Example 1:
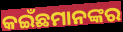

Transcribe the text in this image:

କଇଁଛମାନଙ୍କର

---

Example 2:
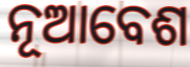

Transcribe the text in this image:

ନୂଆବେଶ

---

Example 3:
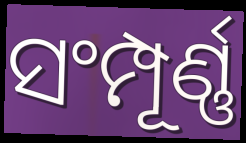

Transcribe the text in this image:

ସଂମ୍ପୂର୍ଣ୍ଣ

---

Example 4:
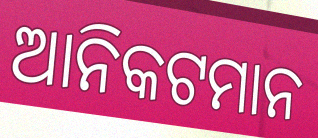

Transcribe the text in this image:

ଆନିକଟମାନ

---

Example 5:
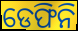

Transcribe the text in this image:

ଡେଫିନି